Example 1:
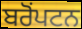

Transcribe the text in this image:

ਬਰੋਂਪਟਨ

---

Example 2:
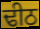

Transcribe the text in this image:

ਢੀਠ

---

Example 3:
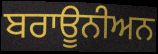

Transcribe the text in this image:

ਬਰਾਊਨੀਅਨ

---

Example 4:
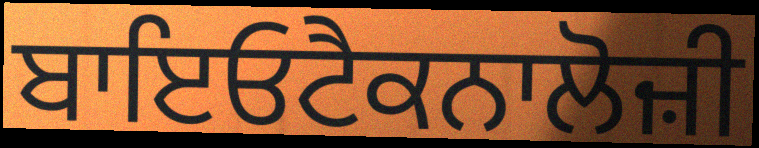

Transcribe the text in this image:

ਬਾਇਓਟੈਕਨਾਲੋਜ਼ੀ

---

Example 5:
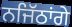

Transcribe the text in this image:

ਨਜਿੱਠਾਂਗੇ